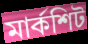
মার্কশিট